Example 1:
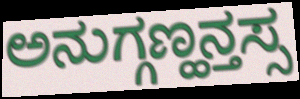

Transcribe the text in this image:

ಅನುಗ್ಗಣ್ಹನ್ತಸ್ಸ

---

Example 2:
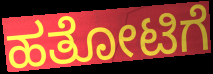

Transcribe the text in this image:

ಹತೋಟಿಗೆ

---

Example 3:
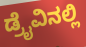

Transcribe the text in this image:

ಡ್ರೈವಿನಲ್ಲಿ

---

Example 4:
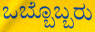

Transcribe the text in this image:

ಒಬ್ಬೊಬ್ಬರು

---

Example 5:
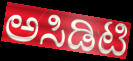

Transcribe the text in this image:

ಅಸಿಡಿಟಿ